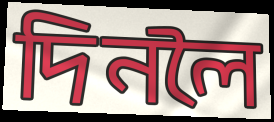
দিনলৈ